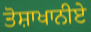
ਤੋਸ਼ਾਖਾਨੀਏ